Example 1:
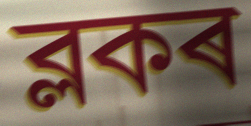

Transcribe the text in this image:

ব্লকৰ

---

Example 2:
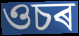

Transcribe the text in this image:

ওচৰ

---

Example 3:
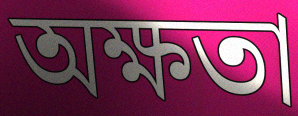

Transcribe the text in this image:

অক্ষতা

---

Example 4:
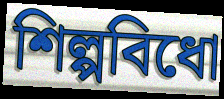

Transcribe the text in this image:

শিল্পবিধো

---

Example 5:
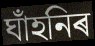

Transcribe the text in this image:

ঘাঁহনিৰ